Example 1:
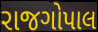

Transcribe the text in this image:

રાજગોપાલ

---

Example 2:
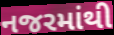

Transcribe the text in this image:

નજરમાંથી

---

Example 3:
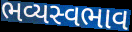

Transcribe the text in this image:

ભવ્યસ્વભાવ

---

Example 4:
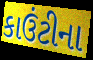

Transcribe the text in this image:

કાઉંટીના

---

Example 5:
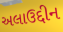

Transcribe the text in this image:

અલાઉદ્દીન